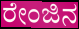
ರೇಂಜಿನ